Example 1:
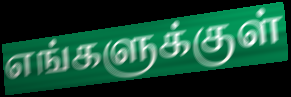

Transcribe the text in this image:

எங்களுக்குள்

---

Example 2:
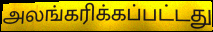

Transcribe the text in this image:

அலங்கரிக்கப்பட்டது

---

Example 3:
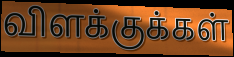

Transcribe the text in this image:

விளக்குக்கள்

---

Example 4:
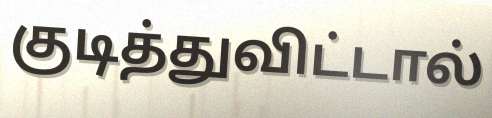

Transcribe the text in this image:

குடித்துவிட்டால்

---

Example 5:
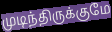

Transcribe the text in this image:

முடிந்திருக்குமே